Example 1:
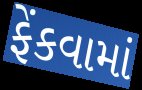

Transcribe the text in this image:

ફેંકવામાં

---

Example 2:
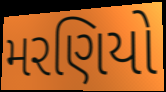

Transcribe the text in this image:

મરણિયો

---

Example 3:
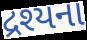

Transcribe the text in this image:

દ્રશ્યના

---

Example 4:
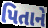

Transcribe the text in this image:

પિતાને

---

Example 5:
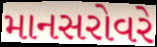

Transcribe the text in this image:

માનસરોવરે